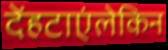
देंहटाएंलेकिन